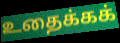
உதைக்கக்